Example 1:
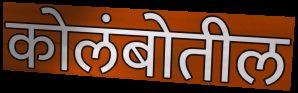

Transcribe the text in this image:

कोलंबोतील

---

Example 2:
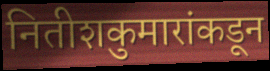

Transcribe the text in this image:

नितीशकुमारांकडून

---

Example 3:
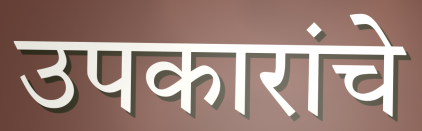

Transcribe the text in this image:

उपकारांचे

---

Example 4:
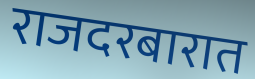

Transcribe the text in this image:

राजदरबारात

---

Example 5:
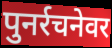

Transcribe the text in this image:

पुनर्रचनेवर